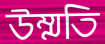
উম্মতি